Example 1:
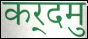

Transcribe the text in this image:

कर्दमु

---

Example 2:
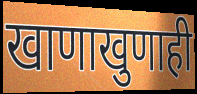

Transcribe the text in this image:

खाणाखुणाही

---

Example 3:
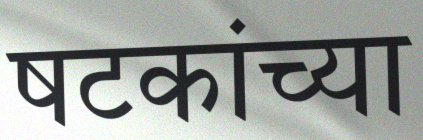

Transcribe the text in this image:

षटकांच्या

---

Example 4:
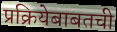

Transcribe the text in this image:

प्रक्रियेबाबतची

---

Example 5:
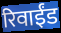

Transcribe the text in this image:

रिवाईंड